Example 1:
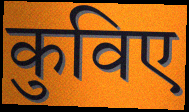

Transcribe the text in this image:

कुविए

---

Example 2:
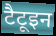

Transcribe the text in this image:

टैटूइन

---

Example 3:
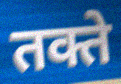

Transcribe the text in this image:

तक्ते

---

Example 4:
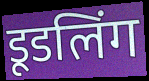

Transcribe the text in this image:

डूडलिंग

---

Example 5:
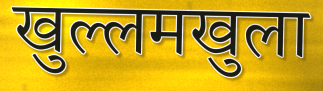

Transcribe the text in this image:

खुल्लमखुला